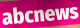
abcnews